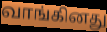
வாங்கினது